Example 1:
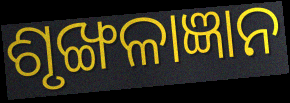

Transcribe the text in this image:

ଶୃଙ୍ଖଳାଜ୍ଞାନ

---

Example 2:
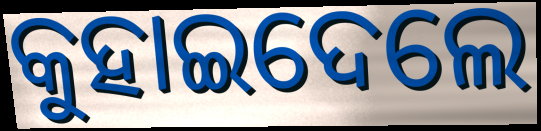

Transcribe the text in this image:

କୁହାଇଦେଲେ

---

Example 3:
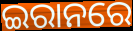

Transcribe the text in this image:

ଇରାନରେ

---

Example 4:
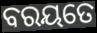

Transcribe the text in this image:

ବରୟତେ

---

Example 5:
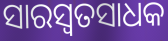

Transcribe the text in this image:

ସାରସ୍ଵତସାଧକ